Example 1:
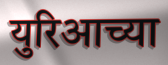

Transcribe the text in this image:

युरिआच्या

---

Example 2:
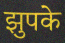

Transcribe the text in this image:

झुपके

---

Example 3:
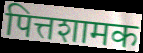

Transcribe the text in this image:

पित्तशामक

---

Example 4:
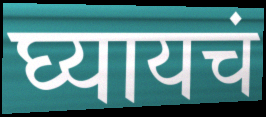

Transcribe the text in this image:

घ्यायचं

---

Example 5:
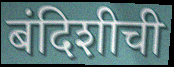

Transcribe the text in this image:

बंदिशीची